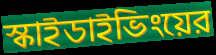
স্কাইডাইভিংয়ের